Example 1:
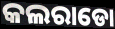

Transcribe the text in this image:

କଲରାଡୋ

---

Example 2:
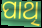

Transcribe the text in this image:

ପାଥି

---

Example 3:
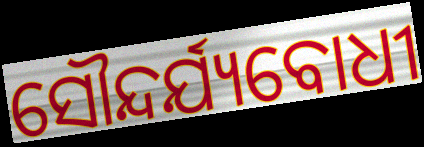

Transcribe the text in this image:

ସୌନ୍ଦର୍ଯ୍ୟବୋଧୀ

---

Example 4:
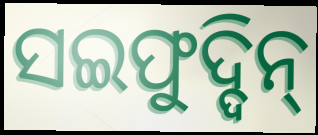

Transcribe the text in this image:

ସଇଫୁଦ୍ଦିନ୍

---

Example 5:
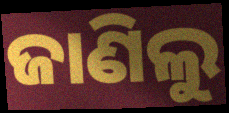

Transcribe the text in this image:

ଜାଣିଲୁ